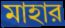
মাহার